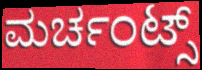
ಮರ್ಚಂಟ್ಸ್